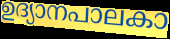
ഉദ്യാനപാലകാ